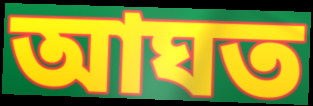
আঘত